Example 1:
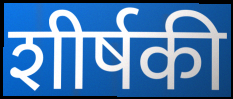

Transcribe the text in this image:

शीर्षकी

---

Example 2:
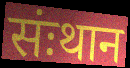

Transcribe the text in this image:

संःथान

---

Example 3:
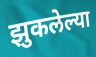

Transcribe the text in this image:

झुकलेल्या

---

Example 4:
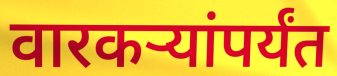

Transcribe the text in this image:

वारकऱ्यांपर्यंत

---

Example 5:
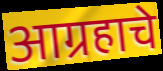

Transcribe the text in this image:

आग्रहाचे